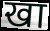
खा